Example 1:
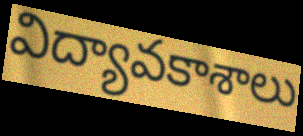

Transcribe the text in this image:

విద్యావకాశాలు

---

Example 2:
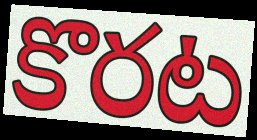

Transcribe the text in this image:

కొరట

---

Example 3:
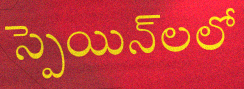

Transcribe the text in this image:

స్పెయిన్‌లలో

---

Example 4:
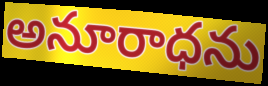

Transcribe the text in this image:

అనూరాధను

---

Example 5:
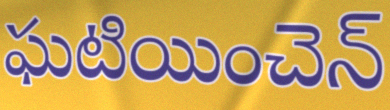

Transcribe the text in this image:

ఘటియించెన్